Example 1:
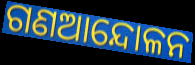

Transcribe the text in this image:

ଗଣଆନ୍ଦୋଳନ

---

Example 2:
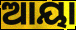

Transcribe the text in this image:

ଆୟା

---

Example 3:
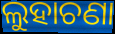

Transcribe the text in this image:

ଲୁହାଚଣା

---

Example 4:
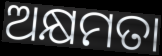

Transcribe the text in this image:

ଅକ୍ଷମତା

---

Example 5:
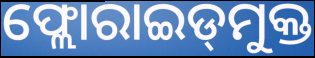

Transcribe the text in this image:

ଫ୍ଲୋରାଇଡ୍‌ମୁକ୍ତ